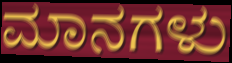
ಮಾನಗಳು